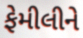
ફેમીલીને